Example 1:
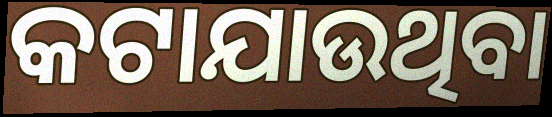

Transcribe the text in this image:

କଟାଯାଉଥିବା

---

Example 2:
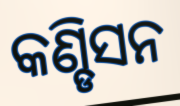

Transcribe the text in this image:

କଣ୍ଡିସନ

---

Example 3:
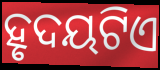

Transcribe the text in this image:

ହୃଦୟଟିଏ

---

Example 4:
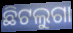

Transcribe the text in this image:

ଛିଟଲୁଗା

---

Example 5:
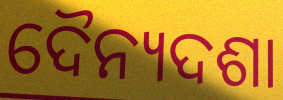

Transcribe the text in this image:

ଦୈନ୍ୟଦଶା